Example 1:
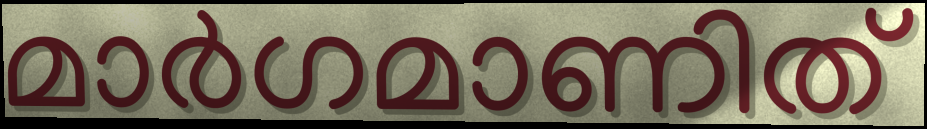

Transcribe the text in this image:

മാർഗമാണിത്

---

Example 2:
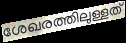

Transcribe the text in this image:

ശേഖരത്തിലുള്ളത്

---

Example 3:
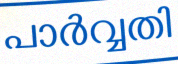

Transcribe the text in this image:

പാർവ്വതി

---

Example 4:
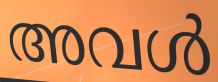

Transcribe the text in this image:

അവൾ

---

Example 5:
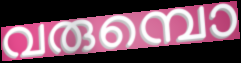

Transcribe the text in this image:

വരുമ്പൊ